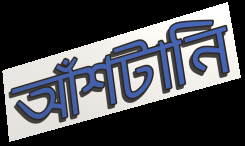
আঁশটানি